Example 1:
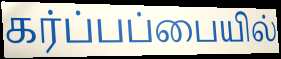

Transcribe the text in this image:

கர்ப்பப்பையில்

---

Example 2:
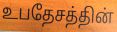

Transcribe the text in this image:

உபதேசத்தின்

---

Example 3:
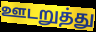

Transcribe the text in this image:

ஊடறுத்து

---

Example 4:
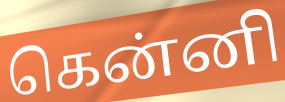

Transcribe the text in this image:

கென்னி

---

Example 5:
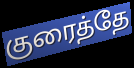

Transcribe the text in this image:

குரைத்தே